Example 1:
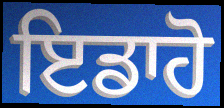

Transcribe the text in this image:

ਇਡਾਹੋ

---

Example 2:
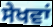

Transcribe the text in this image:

ਸੇਖਵਾਂ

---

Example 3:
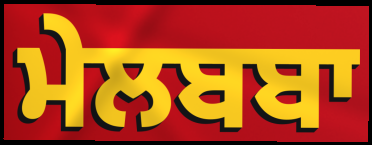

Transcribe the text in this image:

ਮੇਲਬਬਾ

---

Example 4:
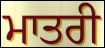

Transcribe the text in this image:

ਮਾਤਰੀ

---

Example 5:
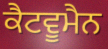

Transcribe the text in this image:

ਕੈਟਵੂਮੈਨ